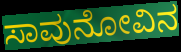
ಸಾವುನೋವಿನ